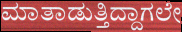
ಮಾತಾಡುತ್ತಿದ್ದಾಗಲೇ